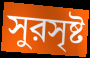
সুরসৃষ্ট